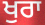
ਖੁਰਾ